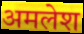
अमलेश